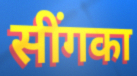
सींगका